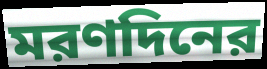
মরণদিনের